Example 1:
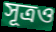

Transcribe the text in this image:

সূত্রও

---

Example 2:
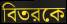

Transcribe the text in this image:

বিতরকে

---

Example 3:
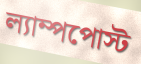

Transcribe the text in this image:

ল্যাম্পপোস্ট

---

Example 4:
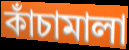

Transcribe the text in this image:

কাঁচামালা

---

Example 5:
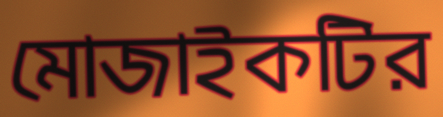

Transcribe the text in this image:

মোজাইকটির